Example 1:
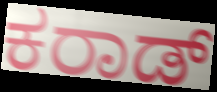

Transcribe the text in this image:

ಕರಾಡ್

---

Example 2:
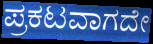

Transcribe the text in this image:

ಪ್ರಕಟವಾಗದೇ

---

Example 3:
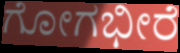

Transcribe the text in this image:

ಗೋಗಭೀರೆ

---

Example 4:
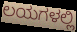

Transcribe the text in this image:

ಲಯಗಳಲ್ಲಿ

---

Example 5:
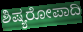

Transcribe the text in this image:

ಶಿಷ್ಯರೋಪಾದಿ